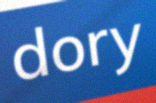
dory